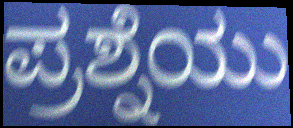
ಪ್ರಶ್ನೆಯು